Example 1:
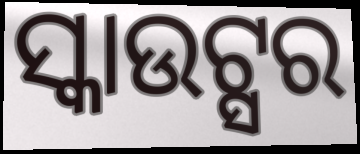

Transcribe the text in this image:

ସ୍କାଉଟ୍ସର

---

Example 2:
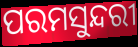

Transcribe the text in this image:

ପରମସୁନ୍ଦରୀ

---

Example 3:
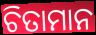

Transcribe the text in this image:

ଚିତାମାନ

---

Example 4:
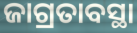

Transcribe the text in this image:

ଜାଗ୍ରତାବସ୍ଥା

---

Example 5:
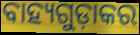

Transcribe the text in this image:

ବାହ୍ୟଗୁଡ଼ାକର